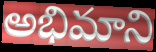
అభిమాని